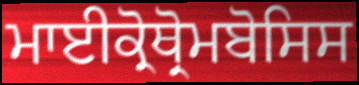
ਮਾਈਕ੍ਰੋਥ੍ਰੋਮਬੋਸਿਸ